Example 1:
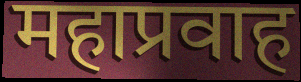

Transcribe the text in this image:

महाप्रवाह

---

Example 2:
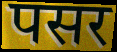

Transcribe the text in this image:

पसर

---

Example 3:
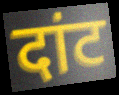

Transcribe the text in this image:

दांट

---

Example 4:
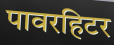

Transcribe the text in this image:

पावरहिटर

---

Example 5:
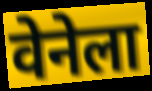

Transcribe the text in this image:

वेनेला